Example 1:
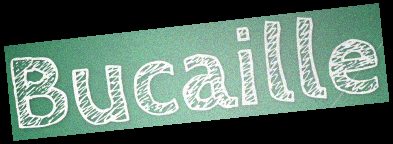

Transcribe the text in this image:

Bucaille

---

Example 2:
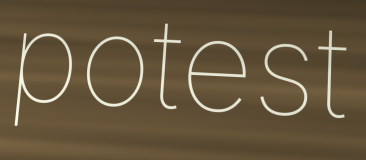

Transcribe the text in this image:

potest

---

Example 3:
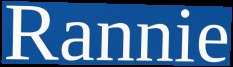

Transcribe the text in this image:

Rannie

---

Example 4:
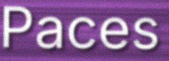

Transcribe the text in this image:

Paces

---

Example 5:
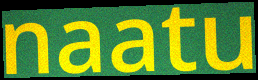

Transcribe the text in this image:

naatu